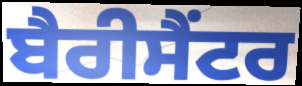
ਬੈਰੀਸੈਂਟਰ